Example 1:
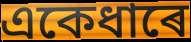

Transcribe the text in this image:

একেধাৰে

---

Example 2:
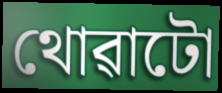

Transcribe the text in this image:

থোৱাটো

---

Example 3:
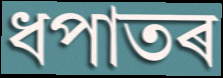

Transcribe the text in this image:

ধপাতৰ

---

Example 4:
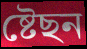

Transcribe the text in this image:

ষ্টেছন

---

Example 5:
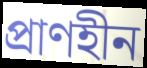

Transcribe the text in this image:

প্ৰাণহীন